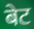
बेट